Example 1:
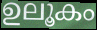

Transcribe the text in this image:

ഉലൂകം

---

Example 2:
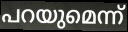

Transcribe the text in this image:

പറയുമെന്ന്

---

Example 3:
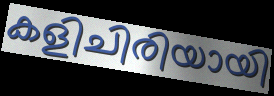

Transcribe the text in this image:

കളിചിരിയായി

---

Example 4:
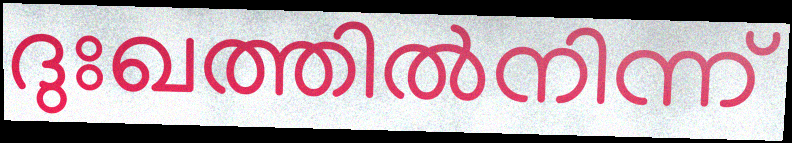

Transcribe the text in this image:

ദുഃഖത്തിൽനിന്ന്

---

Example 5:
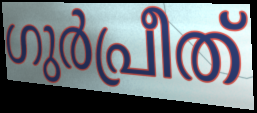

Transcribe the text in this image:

ഗുർപ്രീത്